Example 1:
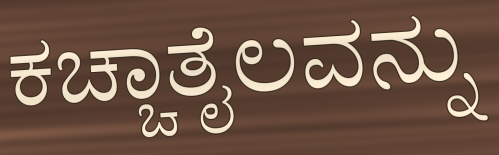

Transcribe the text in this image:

ಕಚ್ಚಾತೈಲವನ್ನು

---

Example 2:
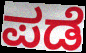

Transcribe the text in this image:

ಪಡೆ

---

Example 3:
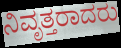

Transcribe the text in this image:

ನಿವೃತ್ತರಾದರು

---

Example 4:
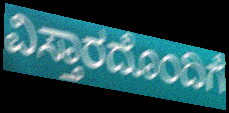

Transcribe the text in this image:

ವಿಸ್ತಾರದೊಂದಿಗೆ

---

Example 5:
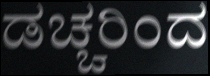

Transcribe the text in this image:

ಡಚ್ಚರಿಂದ